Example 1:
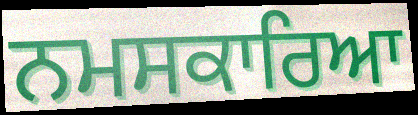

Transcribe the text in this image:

ਨਮਸਕਾਰਿਆ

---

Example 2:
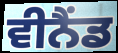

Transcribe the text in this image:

ਵੀਨੈਂਡ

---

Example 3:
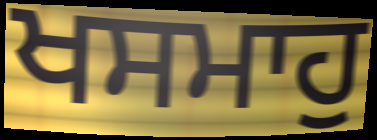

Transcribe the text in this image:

ਖਸਮਾਹੁ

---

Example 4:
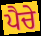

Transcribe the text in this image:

ਪੈਚੇ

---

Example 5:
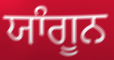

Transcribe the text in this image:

ਯਾੰਗੂਨ